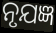
ନୃଯଜ୍ଞ